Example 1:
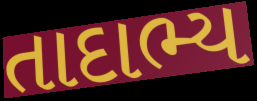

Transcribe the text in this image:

તાદાભ્ય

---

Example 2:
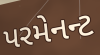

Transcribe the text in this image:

પરમેનન્ટ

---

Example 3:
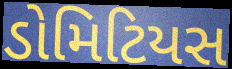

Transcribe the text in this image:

ડોમિટિયસ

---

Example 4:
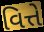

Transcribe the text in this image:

વિત્તે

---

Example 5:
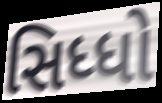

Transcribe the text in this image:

સિધ્ધો